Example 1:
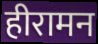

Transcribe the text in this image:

हीरामन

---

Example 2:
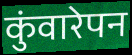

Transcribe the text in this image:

कुंवारेपन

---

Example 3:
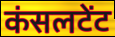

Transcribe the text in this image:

कंसलटेंट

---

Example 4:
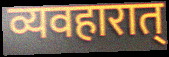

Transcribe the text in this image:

व्यवहारात्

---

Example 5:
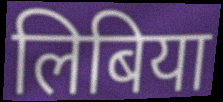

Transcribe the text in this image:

लिबिया